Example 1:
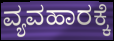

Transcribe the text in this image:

ವ್ಯವಹಾರಕ್ಕೆ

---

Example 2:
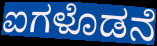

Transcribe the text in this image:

ಐಗಳೊಡನೆ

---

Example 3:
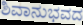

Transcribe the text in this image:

ಶಿವಾನುಭವದ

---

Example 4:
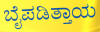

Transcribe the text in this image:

ಬೈಪಡಿತ್ತಾಯ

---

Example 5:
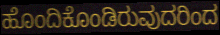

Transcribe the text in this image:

ಹೊಂದಿಕೊಂಡಿರುವುದರಿಂದ